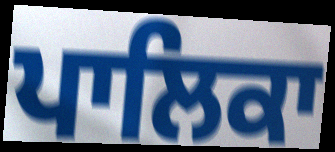
ਪਾਲਿਕਾ